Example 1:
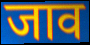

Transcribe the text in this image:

जाव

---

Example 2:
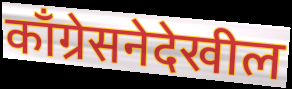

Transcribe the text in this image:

काँग्रेसनेदेखील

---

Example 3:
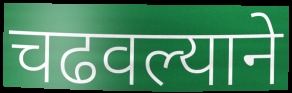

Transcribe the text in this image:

चढवल्याने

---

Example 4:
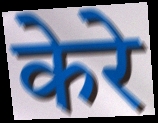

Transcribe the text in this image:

केरे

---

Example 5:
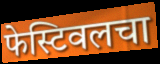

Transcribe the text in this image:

फेस्टिवलचा